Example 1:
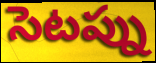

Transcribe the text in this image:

సెటప్ను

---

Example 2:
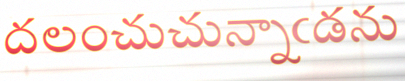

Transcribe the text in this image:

దలంచుచున్నాఁడను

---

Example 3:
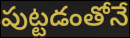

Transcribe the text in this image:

పుట్టడంతోనే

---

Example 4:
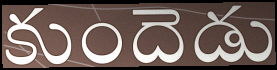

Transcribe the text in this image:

కుందెడు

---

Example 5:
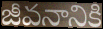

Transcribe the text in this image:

జీవనానికి